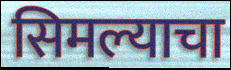
सिमल्याचा